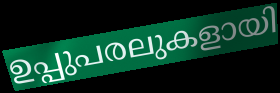
ഉപ്പുപരലുകളായി